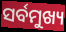
ସର୍ବମୁଖ୍ୟ